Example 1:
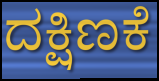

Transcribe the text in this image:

ದಕ್ಷಿಣಕೆ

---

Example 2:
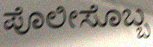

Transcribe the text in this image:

ಪೊಲೀಸೊಬ್ಬ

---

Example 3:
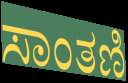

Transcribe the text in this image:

ಸಾಂತಣಿ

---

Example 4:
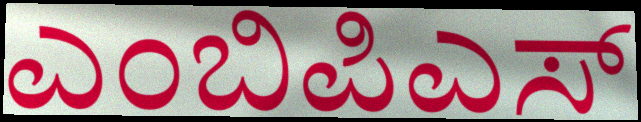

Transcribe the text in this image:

ಎಂಬಿಪಿಎಸ್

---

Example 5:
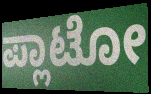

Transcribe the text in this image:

ಪ್ಲಾಟೋ